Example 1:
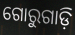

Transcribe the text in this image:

ଗୋରୁଗାଡ଼ି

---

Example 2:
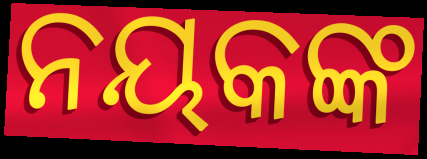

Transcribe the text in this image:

ନୟକଙ୍କ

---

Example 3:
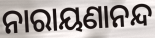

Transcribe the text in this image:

ନାରାୟଣାନନ୍ଦ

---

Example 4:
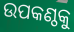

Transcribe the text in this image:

ଉପକଣ୍ଠକୁ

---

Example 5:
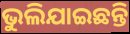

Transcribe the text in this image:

ଭୁଲିଯାଇଛନ୍ତି